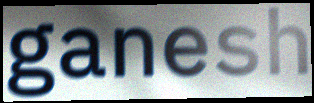
ganesh